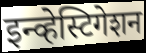
इन्व्हेस्टिगेशन